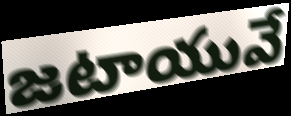
జటాయువే